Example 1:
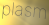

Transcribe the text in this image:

plasm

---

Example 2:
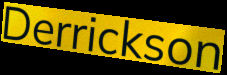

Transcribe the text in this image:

Derrickson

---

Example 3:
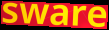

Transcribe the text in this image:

sware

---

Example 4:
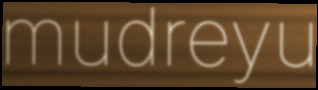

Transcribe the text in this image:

mudreyu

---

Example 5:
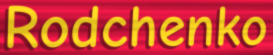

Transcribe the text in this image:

Rodchenko